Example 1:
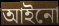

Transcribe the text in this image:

আইনো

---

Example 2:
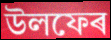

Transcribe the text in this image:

উলফেৰ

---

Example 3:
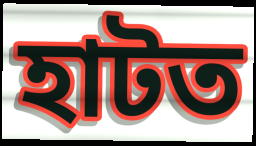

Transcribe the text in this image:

হাটত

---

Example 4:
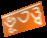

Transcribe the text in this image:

ভূতত্ত্ব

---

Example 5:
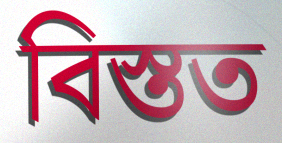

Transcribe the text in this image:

বিস্তত